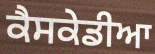
ਕੈਸਕੇਡੀਆ